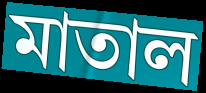
মাতাল